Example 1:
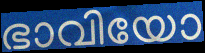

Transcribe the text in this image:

ഭാവിയോ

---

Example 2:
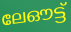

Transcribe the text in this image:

ലേഔട്ട്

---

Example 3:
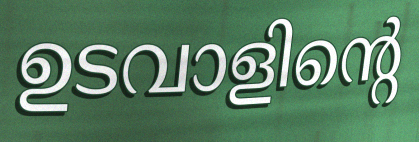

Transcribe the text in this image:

ഉടവാളിന്റെ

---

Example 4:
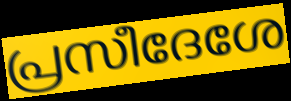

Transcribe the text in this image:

പ്രസീദേശേ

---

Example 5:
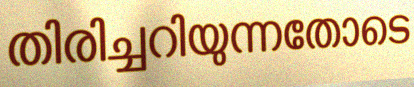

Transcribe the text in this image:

തിരിച്ചറിയുന്നതോടെ